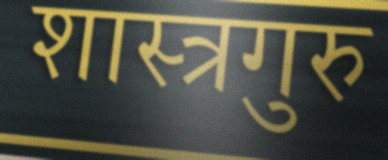
शास्त्रगुरु